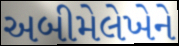
અબીમેલેખેને